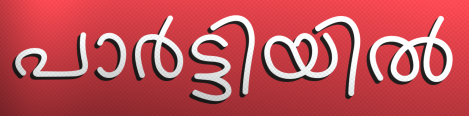
പാർട്ടിയിൽ